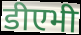
डीएभी